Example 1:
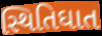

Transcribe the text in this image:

સ્થિતિઘાત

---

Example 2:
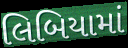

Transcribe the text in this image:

લિબિયામાં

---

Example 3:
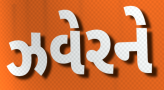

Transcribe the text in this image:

ઝવેરને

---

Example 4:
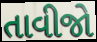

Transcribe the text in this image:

તાવીજો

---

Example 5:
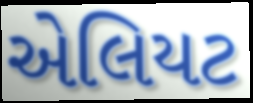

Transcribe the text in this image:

એલિયટ